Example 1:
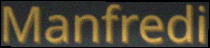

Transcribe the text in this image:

Manfredi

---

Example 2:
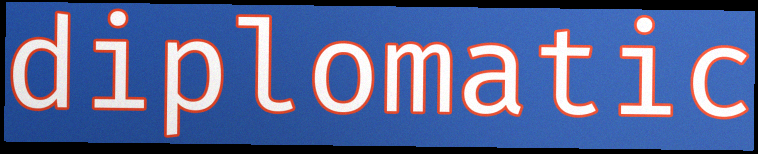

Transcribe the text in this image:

diplomatic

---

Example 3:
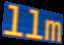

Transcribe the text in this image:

llm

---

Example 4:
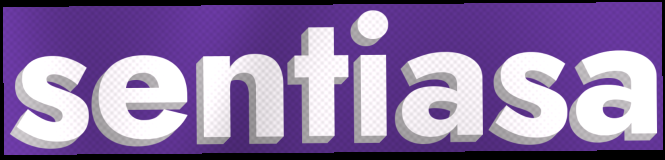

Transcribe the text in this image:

sentiasa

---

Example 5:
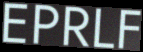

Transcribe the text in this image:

EPRLF